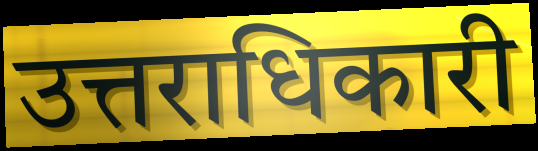
उत्तराधिकारी